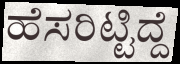
ಹೆಸರಿಟ್ಟಿದ್ದೆ